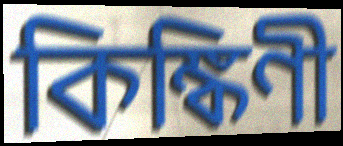
কিঙ্কিণী